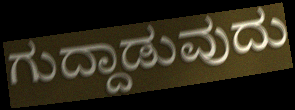
ಗುದ್ದಾಡುವುದು